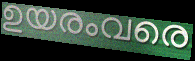
ഉയരംവരെ